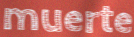
muerte